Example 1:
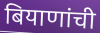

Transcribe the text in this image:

बियाणांची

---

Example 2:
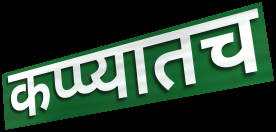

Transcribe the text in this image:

कप्प्यातच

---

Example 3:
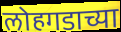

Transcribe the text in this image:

लोहगडाच्या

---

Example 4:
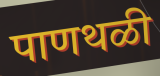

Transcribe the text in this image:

पाणथळी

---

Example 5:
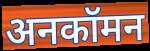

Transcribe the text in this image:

अनकॉमन